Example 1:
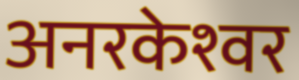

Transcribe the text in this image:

अनरकेश्वर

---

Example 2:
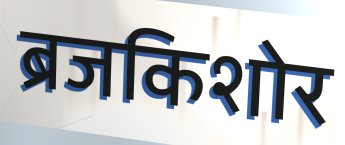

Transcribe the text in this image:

ब्रजकिशोर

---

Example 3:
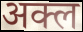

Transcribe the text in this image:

अक्ल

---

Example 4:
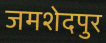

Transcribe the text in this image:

जमशेदपुर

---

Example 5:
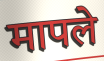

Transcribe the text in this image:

मापले